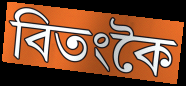
বিতংকৈ